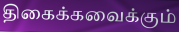
திகைக்கவைக்கும்